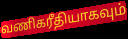
வணிகரீதியாகவும்